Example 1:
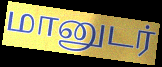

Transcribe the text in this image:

மானுடர்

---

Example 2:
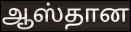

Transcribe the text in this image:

ஆஸ்தான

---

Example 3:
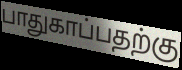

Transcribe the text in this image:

பாதுகாப்பதற்கு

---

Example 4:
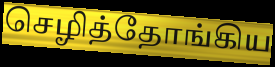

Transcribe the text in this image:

செழித்தோங்கிய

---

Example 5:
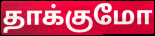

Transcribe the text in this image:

தாக்குமோ